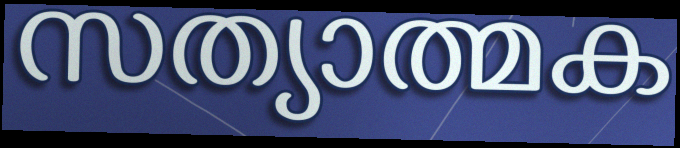
സത്യാത്മക